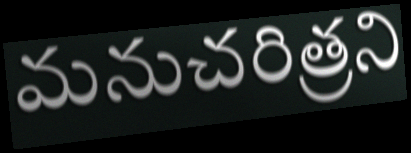
మనుచరిత్రని